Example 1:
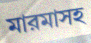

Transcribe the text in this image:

মারমাসহ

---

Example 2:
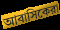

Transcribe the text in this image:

আবাসিকেরা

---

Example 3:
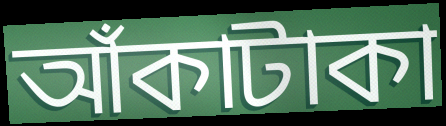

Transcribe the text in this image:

আঁকাটাকা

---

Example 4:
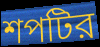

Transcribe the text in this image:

শপটির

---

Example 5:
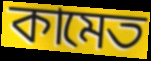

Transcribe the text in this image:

কামেত